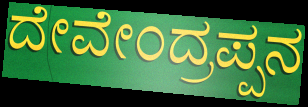
ದೇವೇಂದ್ರಪ್ಪನ